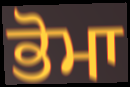
ਭੋਮਾ